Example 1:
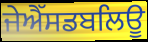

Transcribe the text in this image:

ਜੇਐੱਸਡਬਲਿਊ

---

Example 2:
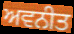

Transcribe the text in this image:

ਅਵਨੀਤ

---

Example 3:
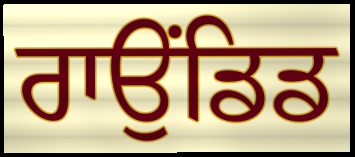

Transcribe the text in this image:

ਰਾਉਂਡਿਡ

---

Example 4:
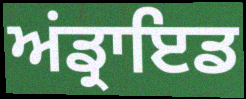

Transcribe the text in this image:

ਅਂਡ੍ਰਾਇਡ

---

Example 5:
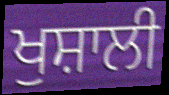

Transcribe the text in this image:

ਖੁਸ਼ਾਲੀ